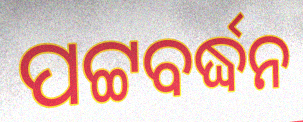
ପଟ୍ଟବର୍ଦ୍ଧନ